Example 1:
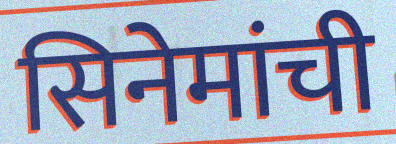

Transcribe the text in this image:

सिनेमांची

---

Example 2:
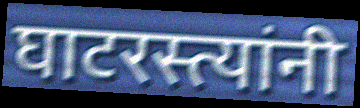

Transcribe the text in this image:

घाटरस्त्यांनी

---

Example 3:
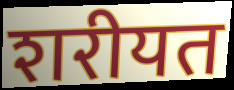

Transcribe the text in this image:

शरीयत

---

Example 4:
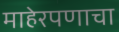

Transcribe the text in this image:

माहेरपणाचा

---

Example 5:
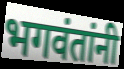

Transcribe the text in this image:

भगवंतांनी